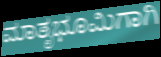
ಮಾತೃಭೂಮಿಗಾಗಿ